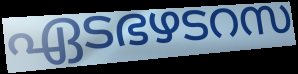
ഏടഭഴടറസ